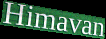
Himavan